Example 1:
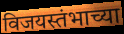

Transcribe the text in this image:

विजयस्तंभाच्या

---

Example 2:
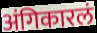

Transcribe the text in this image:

अंगिकारलं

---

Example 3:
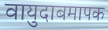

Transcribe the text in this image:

वायुदाबमापक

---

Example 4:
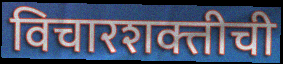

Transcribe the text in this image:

विचारशक्तीची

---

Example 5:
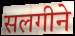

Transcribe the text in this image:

सलगीने